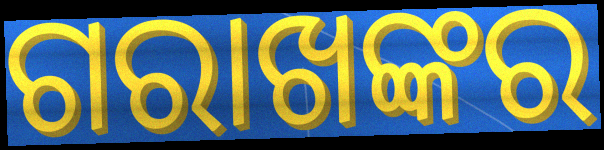
ଗରାଖଙ୍କର